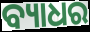
ବ୍ୟାଧର